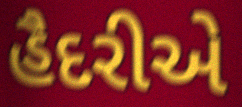
હૈદરીએ